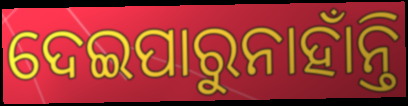
ଦେଇପାରୁନାହାଁନ୍ତି